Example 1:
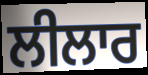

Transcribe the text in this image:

ਲੀਲਾਰ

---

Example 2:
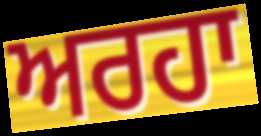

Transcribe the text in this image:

ਅਰਹਾ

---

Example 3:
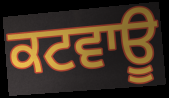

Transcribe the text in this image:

ਕਟਵਾਊ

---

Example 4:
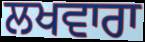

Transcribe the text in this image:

ਲਖਵਾਰਾ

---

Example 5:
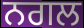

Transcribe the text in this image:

ਨਗਲ